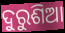
ଦୁରୁଶିଆ